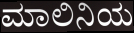
ಮಾಲಿನಿಯ